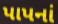
પાપનાં